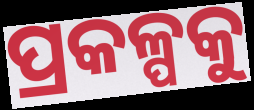
ପ୍ରକଳ୍ପକୁ